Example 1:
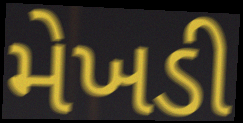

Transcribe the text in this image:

મેખડી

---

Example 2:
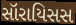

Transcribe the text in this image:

સૉરાયિસસ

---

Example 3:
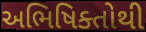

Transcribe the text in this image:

અભિષિક્તોથી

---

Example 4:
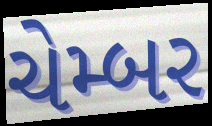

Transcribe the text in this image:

ચેમ્બર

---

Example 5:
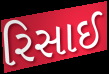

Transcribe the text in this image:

રિસાઈ